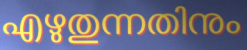
എഴുതുന്നതിനും